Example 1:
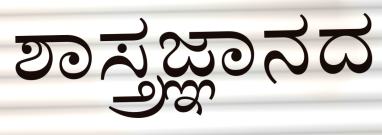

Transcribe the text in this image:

ಶಾಸ್ತ್ರಜ್ಞಾನದ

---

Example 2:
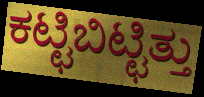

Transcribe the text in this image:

ಕಟ್ಟಿಬಿಟ್ಟಿತ್ತು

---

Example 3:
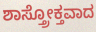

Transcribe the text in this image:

ಶಾಸ್ತ್ರೋಕ್ತವಾದ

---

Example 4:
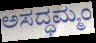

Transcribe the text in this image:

ಅಸದ್ಧಮ್ಮಂ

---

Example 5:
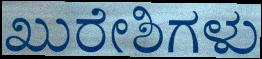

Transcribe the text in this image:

ಖುರೇಶಿಗಳು